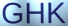
GHK